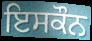
ਇਸਕੌਨ